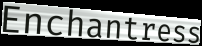
Enchantress